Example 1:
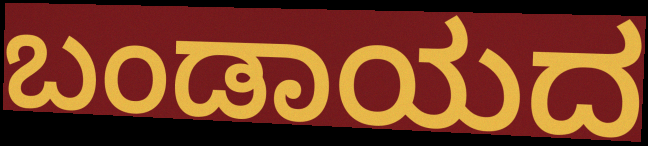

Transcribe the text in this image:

ಬಂಡಾಯದ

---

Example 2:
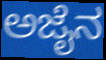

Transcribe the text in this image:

ಅಜೈನ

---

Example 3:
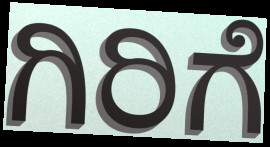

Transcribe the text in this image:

ಗಿರಿಗೆ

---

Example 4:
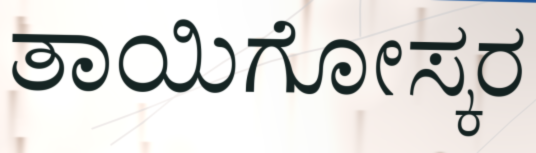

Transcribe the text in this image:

ತಾಯಿಗೋಸ್ಕರ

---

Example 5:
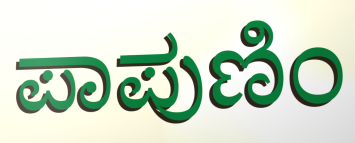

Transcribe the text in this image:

ಪಾಪುಣಿಂ